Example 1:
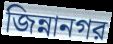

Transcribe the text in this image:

জিন্নানগর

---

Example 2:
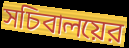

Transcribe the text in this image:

সচিবালয়ের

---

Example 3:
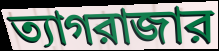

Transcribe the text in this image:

ত্যাগরাজার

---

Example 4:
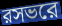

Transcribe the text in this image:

রসভরে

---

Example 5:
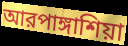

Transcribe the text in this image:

আরপাঙ্গাশিয়া